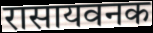
रासायवनक